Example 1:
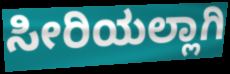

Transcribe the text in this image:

ಸೀರಿಯಲ್ಲಾಗಿ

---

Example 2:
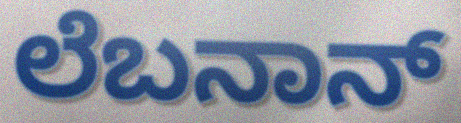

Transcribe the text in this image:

ಲೆಬನಾನ್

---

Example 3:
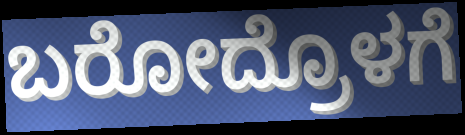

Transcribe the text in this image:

ಬರೋದ್ರೊಳಗೆ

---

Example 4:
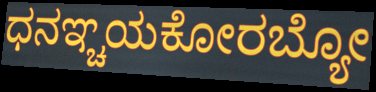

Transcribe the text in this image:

ಧನಞ್ಚಯಕೋರಬ್ಯೋ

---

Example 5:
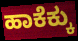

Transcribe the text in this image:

ಹಾಕೆಕ್ಕು